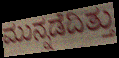
ಮುನ್ನಡೆದಿತ್ತು